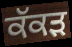
ਕੱਕੜ